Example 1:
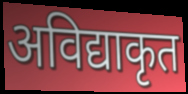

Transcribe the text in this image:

अविद्याकृत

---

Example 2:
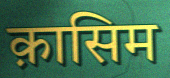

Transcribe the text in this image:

क़ासिम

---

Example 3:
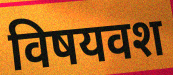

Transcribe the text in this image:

विषयवश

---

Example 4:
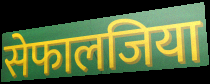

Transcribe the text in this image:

सेफालजिया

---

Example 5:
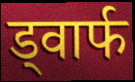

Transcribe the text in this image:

ड्वार्फ